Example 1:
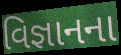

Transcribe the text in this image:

વિજ્ઞાનના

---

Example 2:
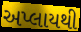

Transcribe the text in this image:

અપ્લાયથી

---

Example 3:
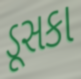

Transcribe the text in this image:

ડૂસકા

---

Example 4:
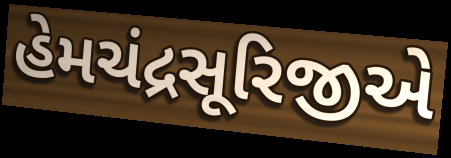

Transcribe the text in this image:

હેમચંદ્રસૂરિજીએ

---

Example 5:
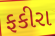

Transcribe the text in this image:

ફકીરા